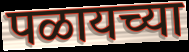
पळायच्या